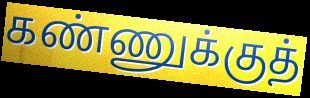
கண்ணுக்குத்